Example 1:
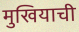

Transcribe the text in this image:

मुखियाची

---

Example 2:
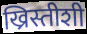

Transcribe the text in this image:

ख्रिस्तीशी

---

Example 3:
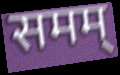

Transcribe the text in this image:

समम्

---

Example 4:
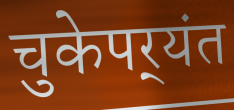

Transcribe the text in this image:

चुकेपर्यंत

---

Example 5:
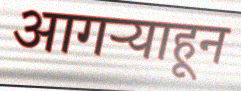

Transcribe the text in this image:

आगऱ्याहून